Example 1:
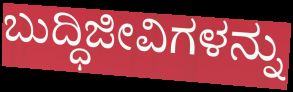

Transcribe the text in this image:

ಬುದ್ಧಿಜೀವಿಗಳನ್ನು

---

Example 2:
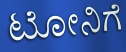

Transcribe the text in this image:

ಟೋನಿಗೆ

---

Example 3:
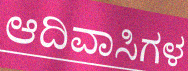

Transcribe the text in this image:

ಆದಿವಾಸಿಗಳ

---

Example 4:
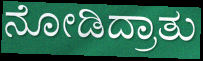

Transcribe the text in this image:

ನೋಡಿದ್ರಾತು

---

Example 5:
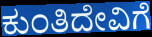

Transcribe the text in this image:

ಕುಂತಿದೇವಿಗೆ